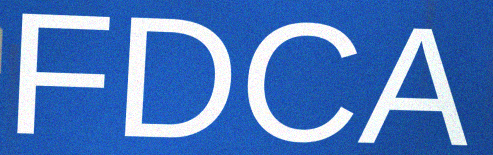
FDCA